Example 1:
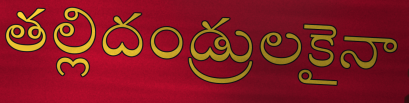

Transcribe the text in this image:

తల్లిదండ్రులకైనా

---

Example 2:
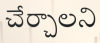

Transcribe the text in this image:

చేర్చాలని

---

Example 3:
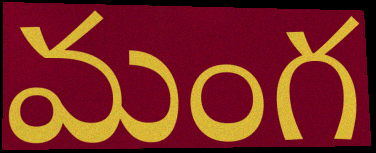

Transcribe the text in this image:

మంగ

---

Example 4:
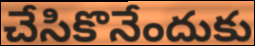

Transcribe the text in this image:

చేసికొనేందుకు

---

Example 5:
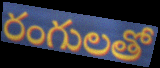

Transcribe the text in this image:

రంగులతో